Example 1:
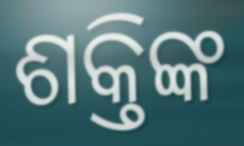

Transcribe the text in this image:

ଶକ୍ତିଙ୍କ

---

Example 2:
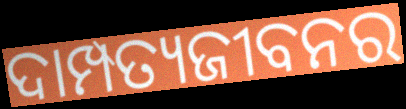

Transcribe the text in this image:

ଦାମ୍ପତ୍ୟଜୀବନର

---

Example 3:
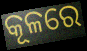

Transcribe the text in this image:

କୂଳରେ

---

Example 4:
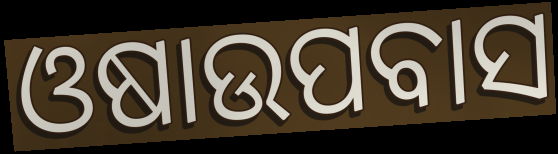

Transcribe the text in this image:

ଓଷାଉପବାସ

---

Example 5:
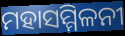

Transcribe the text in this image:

ମହାସମ୍ମିଳନୀ